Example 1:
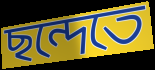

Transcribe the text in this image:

ছন্দেতে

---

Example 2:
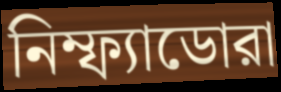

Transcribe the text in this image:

নিম্ফ্যাডোরা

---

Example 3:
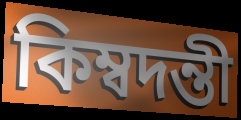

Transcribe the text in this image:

কিম্বদন্তী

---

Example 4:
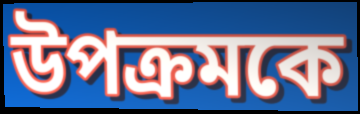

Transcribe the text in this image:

উপক্রমকে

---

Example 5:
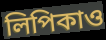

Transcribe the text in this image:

লিপিকাও